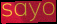
sayo